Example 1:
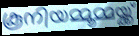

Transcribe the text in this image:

കൂനിയമ്മൂമ്മയ്ക്ക്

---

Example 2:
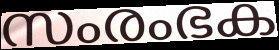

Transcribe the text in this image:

സംരംഭക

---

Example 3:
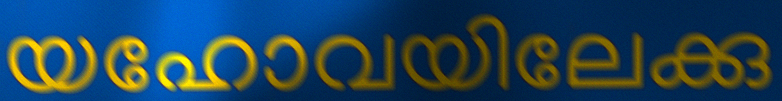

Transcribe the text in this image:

യഹോവയിലേക്കു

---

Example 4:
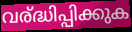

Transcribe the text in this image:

വര്ദ്ധിപ്പിക്കുക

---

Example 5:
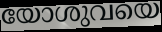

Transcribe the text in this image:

യോശുവയെ